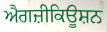
ਐਗਜ਼ੀਕਿਊਸ਼ਨ